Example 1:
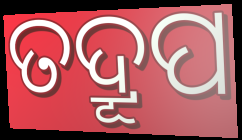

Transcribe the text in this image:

ତଦ୍ରୂପ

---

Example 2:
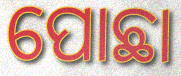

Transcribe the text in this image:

ପୋଛା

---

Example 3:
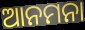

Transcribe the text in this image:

ଆନମନା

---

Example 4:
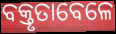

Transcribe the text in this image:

ବକ୍ତୃତାବେଳେ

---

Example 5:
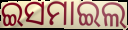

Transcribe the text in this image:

ଇସମାଇଲ